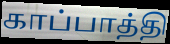
காப்பாத்தி